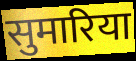
सुमारिया